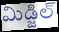
మిడ్జిల్